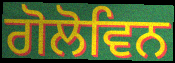
ਗੋਲੋਵਿਨ